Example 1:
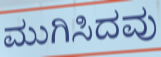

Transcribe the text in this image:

ಮುಗಿಸಿದವು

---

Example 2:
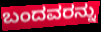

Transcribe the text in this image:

ಬಂದವರನ್ನು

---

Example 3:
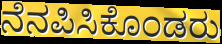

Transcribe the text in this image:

ನೆನಪಿಸಿಕೊಂಡರು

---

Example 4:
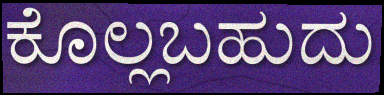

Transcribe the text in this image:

ಕೊಲ್ಲಬಹುದು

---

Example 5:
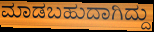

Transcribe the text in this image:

ಮಾಡಬಹುದಾಗಿದ್ದು